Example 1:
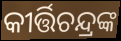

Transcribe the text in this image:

କୀର୍ତ୍ତିଚନ୍ଦ୍ରଙ୍କ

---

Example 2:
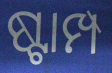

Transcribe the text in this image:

ଷ୍ଟାମ୍ପ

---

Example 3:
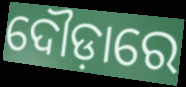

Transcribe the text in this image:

ଦୌଡ଼ାରେ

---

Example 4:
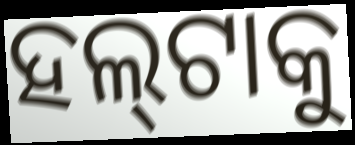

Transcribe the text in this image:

ହଲ୍‌ଟାକୁ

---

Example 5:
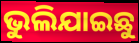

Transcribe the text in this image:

ଭୁଲିଯାଇଛୁ